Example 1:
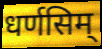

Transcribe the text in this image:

धर्णसिम्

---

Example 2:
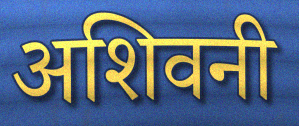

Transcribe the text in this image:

अशिवनी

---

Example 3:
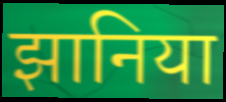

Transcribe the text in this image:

झानिया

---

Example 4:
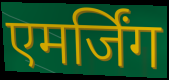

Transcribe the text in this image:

एमर्जिंग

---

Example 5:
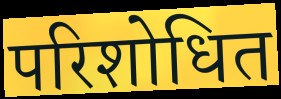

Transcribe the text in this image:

परिशोधित